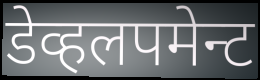
डेव्हलपमेन्ट